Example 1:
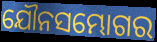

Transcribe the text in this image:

ଯୌନସମ୍ଭୋଗର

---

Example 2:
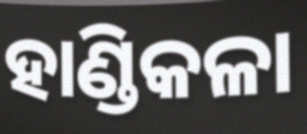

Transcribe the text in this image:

ହାଣ୍ଡିକଳା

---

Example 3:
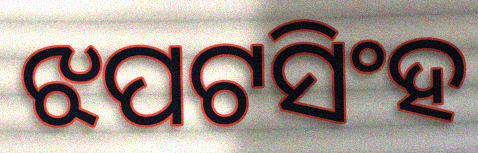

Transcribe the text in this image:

ଝପଟସିଂହ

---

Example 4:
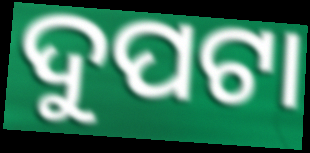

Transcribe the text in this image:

ଦୁପଟା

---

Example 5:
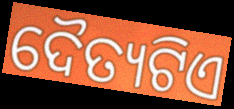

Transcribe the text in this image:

ଦୈତ୍ୟଟିଏ